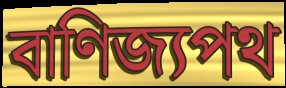
বাণিজ্যপথ